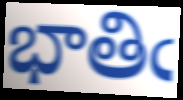
భాతిఁ